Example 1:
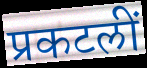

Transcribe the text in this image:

प्रकटलीं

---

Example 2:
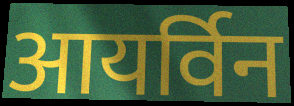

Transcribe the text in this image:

आयर्विन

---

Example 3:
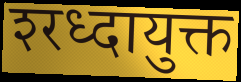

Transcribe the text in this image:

श्रध्दायुक्त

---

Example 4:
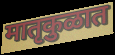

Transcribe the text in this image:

मातृकुळात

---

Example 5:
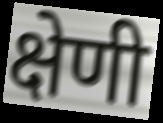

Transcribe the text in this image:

क्षेणी